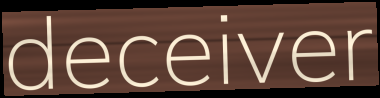
deceiver